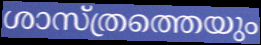
ശാസ്ത്രത്തെയും